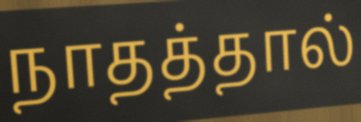
நாதத்தால்